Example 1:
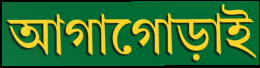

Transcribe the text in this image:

আগাগোড়াই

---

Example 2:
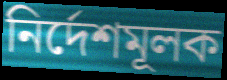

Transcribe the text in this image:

নির্দেশমূলক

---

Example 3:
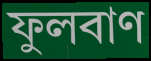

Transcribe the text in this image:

ফুলবাণ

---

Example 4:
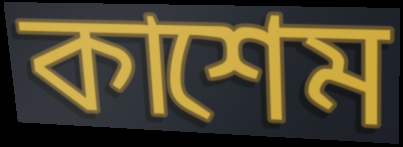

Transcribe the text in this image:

কাশেম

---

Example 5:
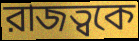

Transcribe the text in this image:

রাজত্বকে